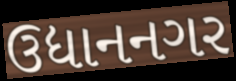
ઉદ્યાનનગર